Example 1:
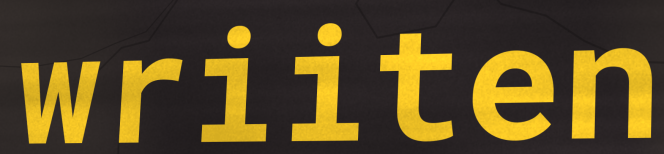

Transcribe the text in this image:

wriiten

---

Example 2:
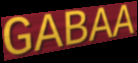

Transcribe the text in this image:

GABAA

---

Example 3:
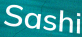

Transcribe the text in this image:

Sashi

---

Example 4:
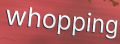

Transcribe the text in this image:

whopping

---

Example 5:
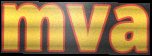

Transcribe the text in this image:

mva